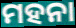
ମହନା